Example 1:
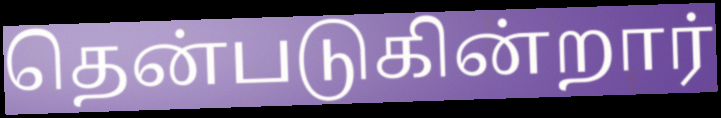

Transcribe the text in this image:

தென்படுகின்றார்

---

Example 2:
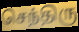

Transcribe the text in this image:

செந்திரு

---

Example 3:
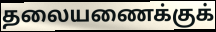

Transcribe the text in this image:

தலையணைக்குக்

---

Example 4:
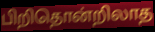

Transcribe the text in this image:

பிறிதொன்றிலாத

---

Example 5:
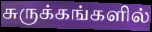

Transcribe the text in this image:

சுருக்கங்களில்